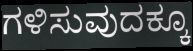
ಗಳಿಸುವುದಕ್ಕೂ